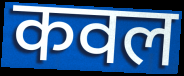
कवल